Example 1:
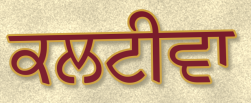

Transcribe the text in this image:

ਕਲਟੀਵਾ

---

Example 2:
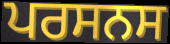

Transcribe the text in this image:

ਪਰਸਨਸ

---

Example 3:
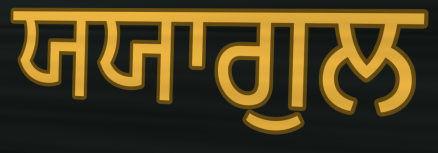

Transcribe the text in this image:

ਯਯਾਗੁਲ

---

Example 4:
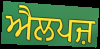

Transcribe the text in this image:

ਐਲਪਜ਼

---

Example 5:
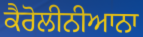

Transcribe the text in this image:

ਕੈਰੋਲੀਨੀਆਨਾ